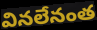
వినలేనంత